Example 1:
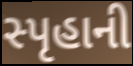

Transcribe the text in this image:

સ્પૃહાની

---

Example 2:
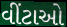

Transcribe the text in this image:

વીંટાઓ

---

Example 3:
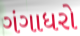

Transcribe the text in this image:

ગંગાધરો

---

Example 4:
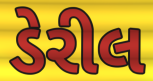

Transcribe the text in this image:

ડેરીલ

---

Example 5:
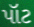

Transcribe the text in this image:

પૉટ